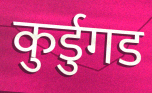
कुर्डुगड